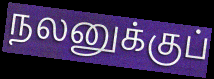
நலனுக்குப்